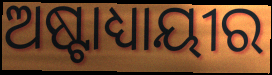
ଅଷ୍ଟାଧ୍ଯାୟୀର